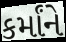
કર્માંને